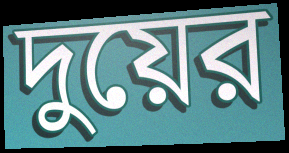
দুয়ের